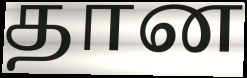
தான